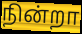
நின்றா